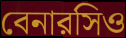
বেনারসিও